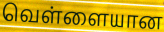
வெள்ளையான